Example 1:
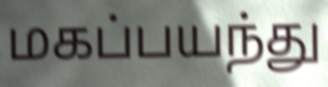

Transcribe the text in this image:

மகப்பயந்து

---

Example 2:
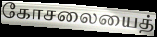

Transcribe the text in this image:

கோசலையைத்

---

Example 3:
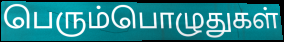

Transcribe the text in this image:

பெரும்பொழுதுகள்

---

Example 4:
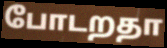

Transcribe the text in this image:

போடறதா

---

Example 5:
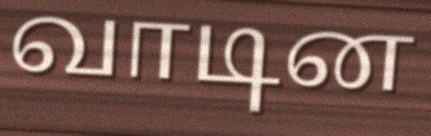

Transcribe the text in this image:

வாடின